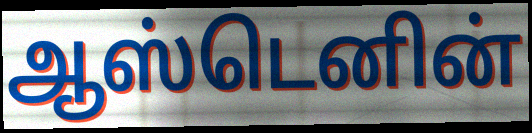
ஆஸ்டெனின்